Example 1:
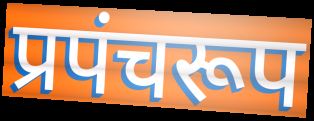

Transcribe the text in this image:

प्रपंचरूप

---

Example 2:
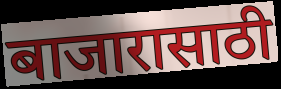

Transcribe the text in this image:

बाजारासाठी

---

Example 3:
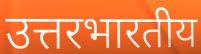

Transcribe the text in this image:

उत्तरभारतीय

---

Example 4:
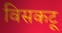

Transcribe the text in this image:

विसकटू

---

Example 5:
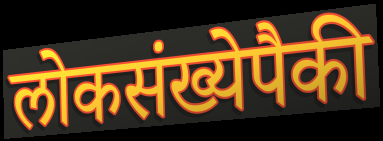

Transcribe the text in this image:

लोकसंख्येपैकी